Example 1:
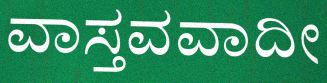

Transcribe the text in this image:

ವಾಸ್ತವವಾದೀ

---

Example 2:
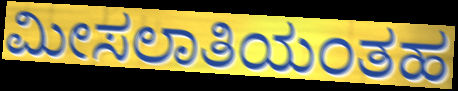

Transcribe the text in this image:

ಮೀಸಲಾತಿಯಂತಹ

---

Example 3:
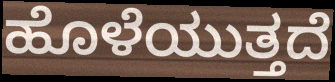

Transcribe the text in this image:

ಹೊಳೆಯುತ್ತದೆ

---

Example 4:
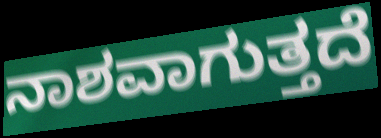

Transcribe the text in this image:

ನಾಶವಾಗುತ್ತದೆ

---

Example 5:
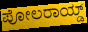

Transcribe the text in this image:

ಪೋಲರಾಯ್ಡ್